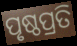
ପୃଷ୍ଠପ୍ରତି